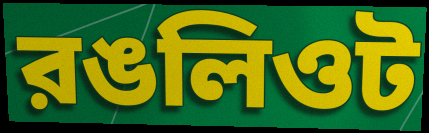
রঙলিওট